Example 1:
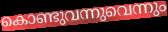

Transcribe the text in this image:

കൊണ്ടുവന്നുവെന്നും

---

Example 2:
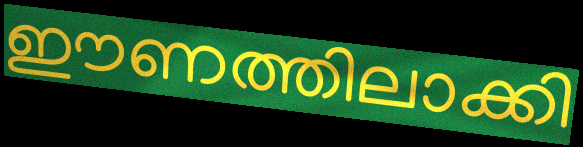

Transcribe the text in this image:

ഈണത്തിലാക്കി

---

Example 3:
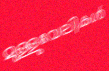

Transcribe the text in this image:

മുള്ളുവേലികൾ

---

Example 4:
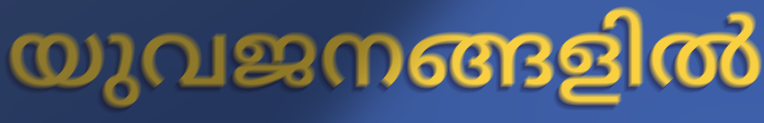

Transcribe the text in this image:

യുവജനങ്ങളിൽ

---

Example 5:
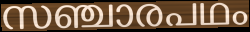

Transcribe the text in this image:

സഞ്ചാരപഥം